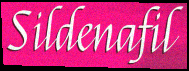
Sildenafil